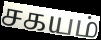
சகயம்